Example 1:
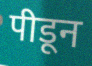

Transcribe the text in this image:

पीडून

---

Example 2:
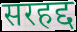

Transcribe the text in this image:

सरहद्द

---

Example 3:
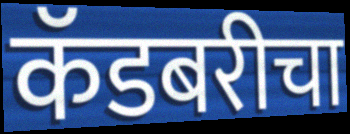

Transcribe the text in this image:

कॅडबरीचा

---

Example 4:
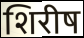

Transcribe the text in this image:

शिरीष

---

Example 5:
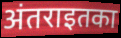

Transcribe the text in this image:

अंतराइतका